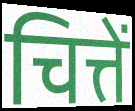
चित्तें